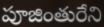
పూజింతురేని